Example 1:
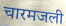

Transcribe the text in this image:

चारमजली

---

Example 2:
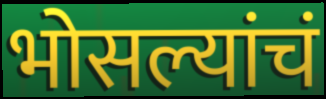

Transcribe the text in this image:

भोसल्यांचं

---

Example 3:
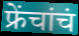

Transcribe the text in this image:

फ्रेंचांचं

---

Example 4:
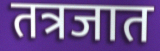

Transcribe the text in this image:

तत्रजात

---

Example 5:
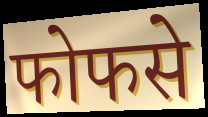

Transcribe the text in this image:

फोफसे